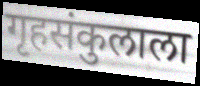
गृहसंकुलाला